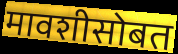
मावशीसोबत